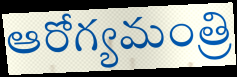
ఆరోగ్యమంత్రి